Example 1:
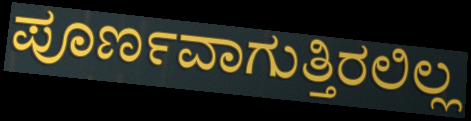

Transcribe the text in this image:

ಪೂರ್ಣವಾಗುತ್ತಿರಲಿಲ್ಲ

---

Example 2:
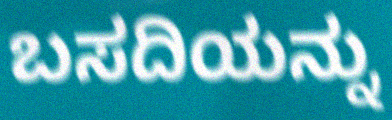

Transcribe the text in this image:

ಬಸದಿಯನ್ನು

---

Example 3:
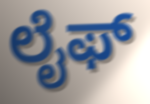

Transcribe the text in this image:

ಲೈಫ್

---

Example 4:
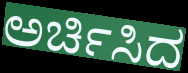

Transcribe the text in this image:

ಅರ್ಚಿಸಿದ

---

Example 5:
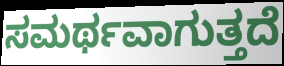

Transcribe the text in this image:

ಸಮರ್ಥವಾಗುತ್ತದೆ